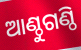
ଆଣ୍ଠୁଗଣ୍ଠି